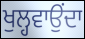
ਖੁਲ੍ਹਵਾਉਂਦਾ